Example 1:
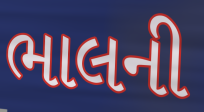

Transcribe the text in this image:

ભાલની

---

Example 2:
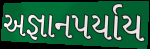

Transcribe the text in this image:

અજ્ઞાનપર્યાય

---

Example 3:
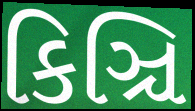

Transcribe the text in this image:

કિઞ્ચિ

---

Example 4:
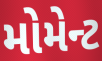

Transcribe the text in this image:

મોમેન્ટ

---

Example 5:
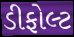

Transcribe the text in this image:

ડીફોલ્ટ